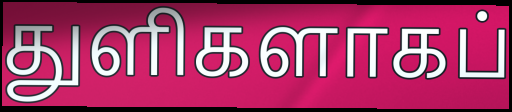
துளிகளாகப்